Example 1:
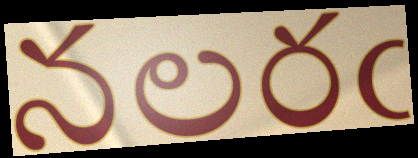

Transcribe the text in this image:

నలరఁ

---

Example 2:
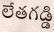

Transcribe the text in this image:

లేతగడ్డి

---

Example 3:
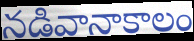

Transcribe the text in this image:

నడివానాకాలం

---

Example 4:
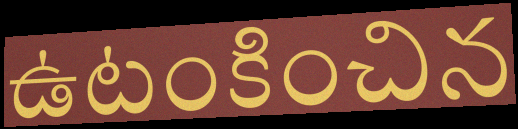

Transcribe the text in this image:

ఉటంకించిన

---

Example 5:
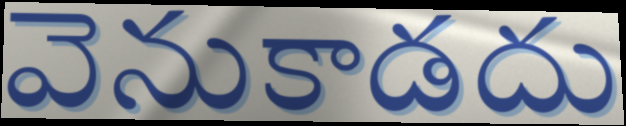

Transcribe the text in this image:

వెనుకాడదు